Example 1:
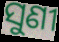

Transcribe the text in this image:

ସୁଣୀ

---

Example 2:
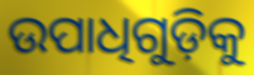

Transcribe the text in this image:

ଉପାଧିଗୁଡ଼ିକୁ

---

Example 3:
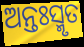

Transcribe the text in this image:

ଅନ୍ତଃସ୍ମୃତ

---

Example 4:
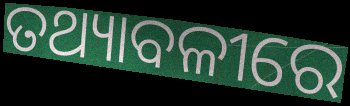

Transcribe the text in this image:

ତଥ୍ୟାବଳୀରେ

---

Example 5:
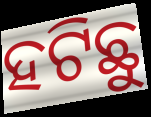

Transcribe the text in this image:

ହଟିଛୁ